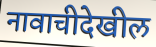
नावाचीदेखील